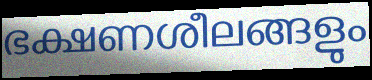
ഭക്ഷണശീലങ്ങളും